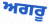
ਅਗਰੂ